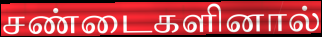
சண்டைகளினால்